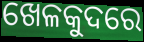
ଖେଳକୁଦରେ